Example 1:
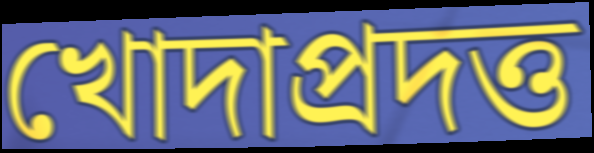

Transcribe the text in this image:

খোদাপ্রদত্ত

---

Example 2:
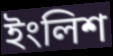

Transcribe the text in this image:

ইংলিশ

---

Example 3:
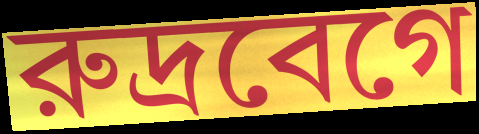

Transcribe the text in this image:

রুদ্রবেগে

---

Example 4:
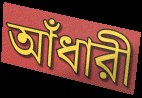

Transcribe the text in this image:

আঁধারী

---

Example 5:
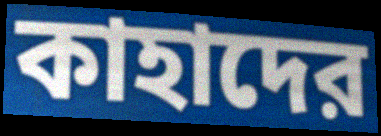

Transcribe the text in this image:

কাহাদের